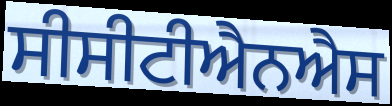
ਸੀਸੀਟੀਐਨਐਸ